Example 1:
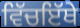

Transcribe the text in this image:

ਵਿੱਚਇੱਥੇ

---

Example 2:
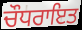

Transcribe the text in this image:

ਚੌਧਰਾਇਤ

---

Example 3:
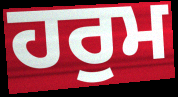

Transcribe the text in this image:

ਹਰੁਮ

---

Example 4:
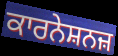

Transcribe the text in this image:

ਕਾਰਨੇਸ਼ਨਜ਼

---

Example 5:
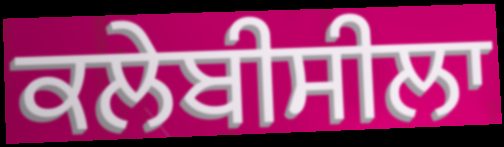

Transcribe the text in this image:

ਕਲੇਬੀਸੀਲਾ